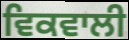
ਵਿਕਵਾਲੀ